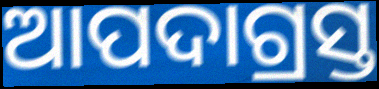
ଆପଦାଗ୍ରସ୍ତ